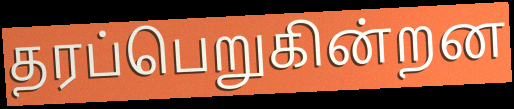
தரப்பெறுகின்றன